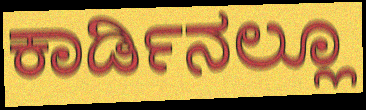
ಕಾರ್ಡಿನಲ್ಲೂ